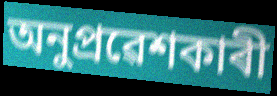
অনুপ্ৰৱেশকাৰী